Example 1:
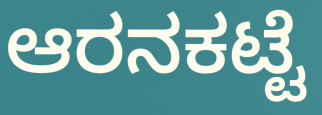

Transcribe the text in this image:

ಆರನಕಟ್ಟೆ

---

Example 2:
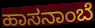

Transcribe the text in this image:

ಹಾಸನಾಂಬೆ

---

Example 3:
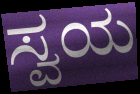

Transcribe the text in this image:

ಸ್ವಯ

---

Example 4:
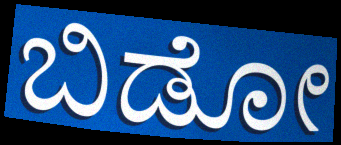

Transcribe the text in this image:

ಬಿಡೋ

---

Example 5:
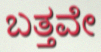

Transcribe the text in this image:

ಬತ್ತವೇ